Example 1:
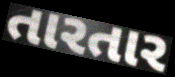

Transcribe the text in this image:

તારતાર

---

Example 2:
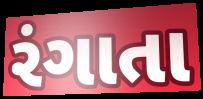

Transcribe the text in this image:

રંગાતા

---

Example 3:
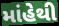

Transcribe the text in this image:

માંહેથી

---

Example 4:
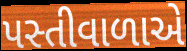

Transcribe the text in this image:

પસ્તીવાળાએ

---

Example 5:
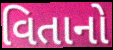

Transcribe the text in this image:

વિતાનો